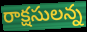
రాక్షసులన్న